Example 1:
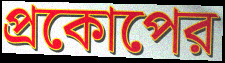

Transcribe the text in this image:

প্রকোপের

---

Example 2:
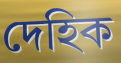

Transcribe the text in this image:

দেহিক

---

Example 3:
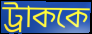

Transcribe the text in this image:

ট্রাককে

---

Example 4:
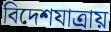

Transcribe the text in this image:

বিদেশযাত্রায়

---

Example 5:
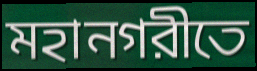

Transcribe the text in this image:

মহানগরীতে